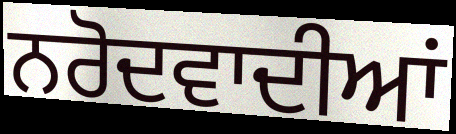
ਨਰੋਦਵਾਦੀਆਂ